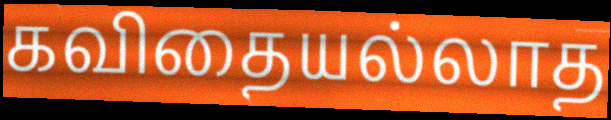
கவிதையல்லாத